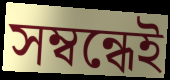
সম্বন্ধেই